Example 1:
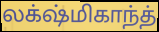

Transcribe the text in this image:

லக்‌ஷ்மிகாந்த்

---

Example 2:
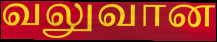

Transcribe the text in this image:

வலுவான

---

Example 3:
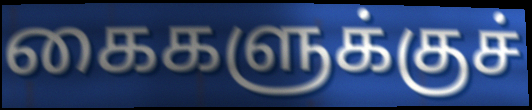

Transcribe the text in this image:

கைகளுக்குச்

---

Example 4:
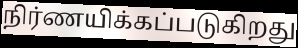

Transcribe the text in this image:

நிர்ணயிக்கப்படுகிறது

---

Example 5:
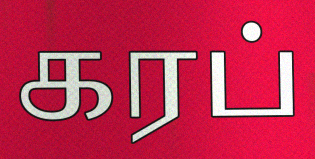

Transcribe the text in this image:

கரப்